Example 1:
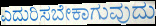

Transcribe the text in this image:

ಎದುರಿಸಬೇಕಾಗುವುದು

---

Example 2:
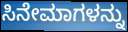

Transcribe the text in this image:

ಸಿನೇಮಾಗಳನ್ನು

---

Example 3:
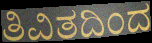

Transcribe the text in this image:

ತಿವಿತದಿಂದ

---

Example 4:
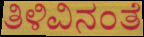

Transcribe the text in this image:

ತಿಳಿವಿನಂತೆ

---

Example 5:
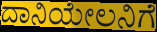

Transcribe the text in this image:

ದಾನಿಯೇಲನಿಗೆ